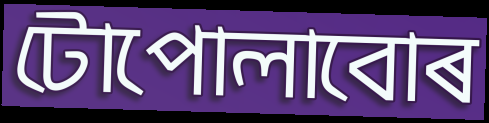
টোপোলাবোৰ